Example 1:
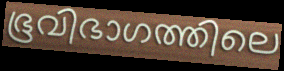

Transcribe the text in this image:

ഭൂവിഭാഗത്തിലെ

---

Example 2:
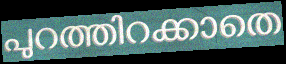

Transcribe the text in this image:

പുറത്തിറക്കാതെ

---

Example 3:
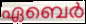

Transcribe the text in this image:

ഏബെർ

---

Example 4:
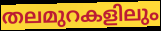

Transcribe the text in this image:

തലമുറകളിലും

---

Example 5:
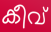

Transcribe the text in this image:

കീവ്